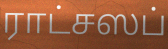
ராட்சஸப்